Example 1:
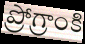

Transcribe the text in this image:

ప్రోగ్రాంకి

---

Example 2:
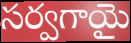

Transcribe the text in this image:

సర్వగాయై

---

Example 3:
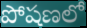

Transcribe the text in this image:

పోషణలో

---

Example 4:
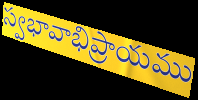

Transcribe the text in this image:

స్వభావాభిప్రాయము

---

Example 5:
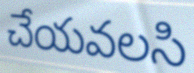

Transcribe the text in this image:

చేయవలసి